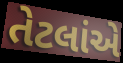
તેટલાંએ